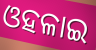
ଓହଳାଇ